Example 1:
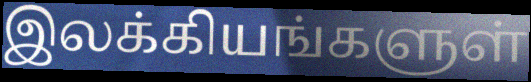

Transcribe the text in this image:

இலக்கியங்களுள்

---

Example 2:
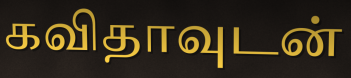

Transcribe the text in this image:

கவிதாவுடன்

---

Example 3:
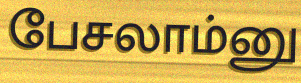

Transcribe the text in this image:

பேசலாம்னு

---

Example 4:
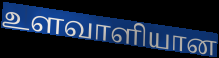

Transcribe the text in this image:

உளவாளியான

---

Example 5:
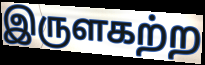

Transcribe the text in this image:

இருளகற்ற